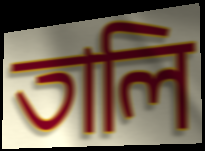
তালি